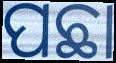
ପଛା